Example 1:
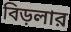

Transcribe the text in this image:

বিড়লার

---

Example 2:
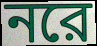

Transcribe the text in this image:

নরে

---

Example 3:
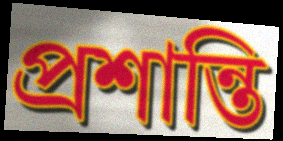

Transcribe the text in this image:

প্রশান্তি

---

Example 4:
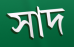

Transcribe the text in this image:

সাদ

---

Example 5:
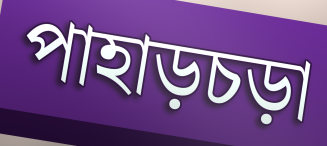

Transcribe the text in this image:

পাহাড়চড়া